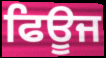
ਫਿਊਜ